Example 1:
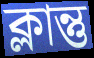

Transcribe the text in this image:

ক্লান্তু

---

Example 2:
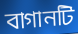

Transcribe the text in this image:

বাগানটি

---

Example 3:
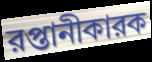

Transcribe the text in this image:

রপ্তানীকারক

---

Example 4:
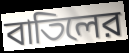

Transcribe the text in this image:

বাতিলের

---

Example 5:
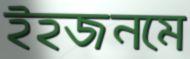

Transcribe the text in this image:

ইহজনমে